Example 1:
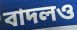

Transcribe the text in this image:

বাদলও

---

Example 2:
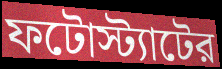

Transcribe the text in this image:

ফটোস্ট্যাটের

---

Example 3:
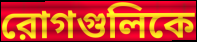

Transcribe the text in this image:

রোগগুলিকে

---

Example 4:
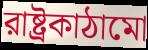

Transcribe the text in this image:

রাষ্ট্রকাঠামো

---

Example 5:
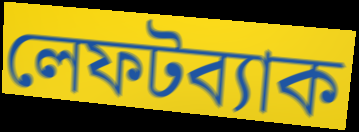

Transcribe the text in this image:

লেফটব্যাক